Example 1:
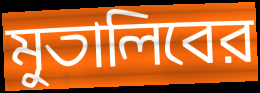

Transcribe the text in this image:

মুতালিবের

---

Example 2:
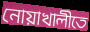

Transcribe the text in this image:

নোয়াখালীতে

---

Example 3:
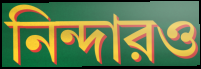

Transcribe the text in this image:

নিন্দারও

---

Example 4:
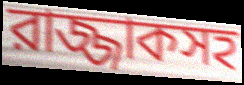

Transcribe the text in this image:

রাজ্জাকসহ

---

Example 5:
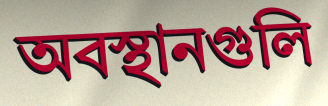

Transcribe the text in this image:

অবস্থানগুলি